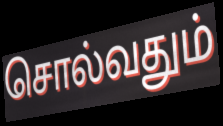
சொல்வதும்